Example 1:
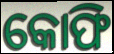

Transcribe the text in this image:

କୋଫି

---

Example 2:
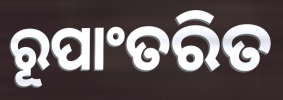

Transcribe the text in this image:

ରୂପାଂତରିତ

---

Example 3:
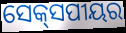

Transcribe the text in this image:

ସେକ୍‌ସପୀୟର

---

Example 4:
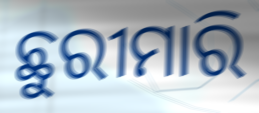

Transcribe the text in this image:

ଛୁରୀମାରି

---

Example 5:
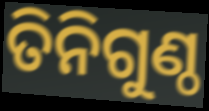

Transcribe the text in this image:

ତିନିଗୁଣ୍ଠ